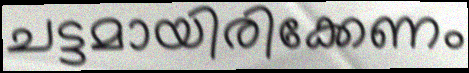
ചട്ടമായിരിക്കേണം